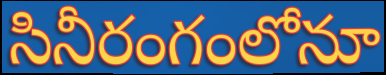
సినీరంగంలోనూ